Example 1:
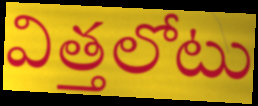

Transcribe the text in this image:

విత్తలోటు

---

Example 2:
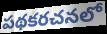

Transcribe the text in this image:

పథకరచనలో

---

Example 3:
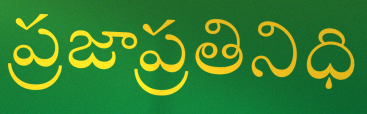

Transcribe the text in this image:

ప్రజాప్రతినిధి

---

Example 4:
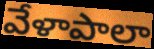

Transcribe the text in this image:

వేళాపాలా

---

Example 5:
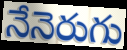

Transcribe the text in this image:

నేనెరుగు